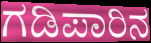
ಗಡಿಪಾರಿನ